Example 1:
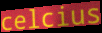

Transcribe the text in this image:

celcius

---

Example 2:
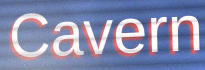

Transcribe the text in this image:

Cavern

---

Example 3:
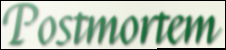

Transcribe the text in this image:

Postmortem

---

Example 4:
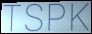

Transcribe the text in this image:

TSPK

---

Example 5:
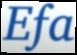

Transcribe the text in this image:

Efa